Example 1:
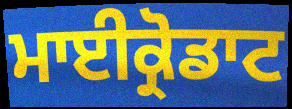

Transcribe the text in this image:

ਮਾਈਕ੍ਰੋਡਾਟ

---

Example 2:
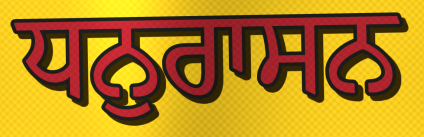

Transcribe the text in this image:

ਧਨੁਰਾਸਨ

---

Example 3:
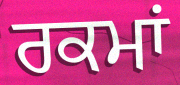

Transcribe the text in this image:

ਰਕਮਾਂ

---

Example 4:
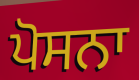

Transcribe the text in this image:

ਪੋਸਨਾ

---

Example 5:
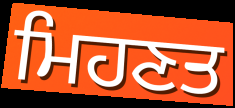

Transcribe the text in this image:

ਮਿਹਣਤ